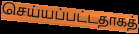
செய்யப்பட்டதாகத்